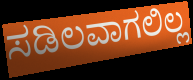
ಸಡಿಲವಾಗಲಿಲ್ಲ